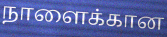
நாளைக்கான